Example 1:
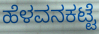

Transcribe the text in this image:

ಹೆಳವನಕಟ್ಟೆ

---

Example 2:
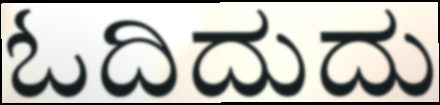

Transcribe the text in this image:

ಓದಿದುದು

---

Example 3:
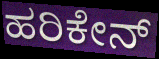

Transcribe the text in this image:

ಹರಿಕೇನ್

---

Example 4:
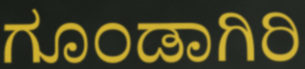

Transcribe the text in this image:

ಗೂಂಡಾಗಿರಿ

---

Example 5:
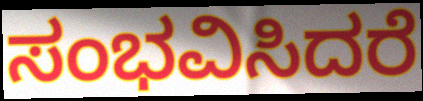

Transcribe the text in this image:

ಸಂಭವಿಸಿದರೆ